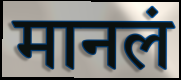
मानलं